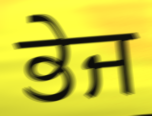
ਭੇਜ